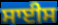
ਸਾਈਸ